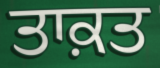
ਤਾਕ਼ਤ